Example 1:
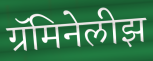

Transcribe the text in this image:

ग्रॅमिनेलीझ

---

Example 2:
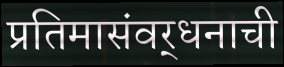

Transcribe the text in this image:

प्रतिमासंवर्धनाची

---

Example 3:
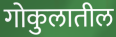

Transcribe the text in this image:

गोकुलातील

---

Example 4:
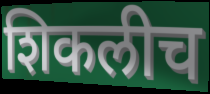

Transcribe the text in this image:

शिकलीच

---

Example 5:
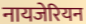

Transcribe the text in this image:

नायजेरियन